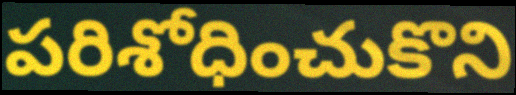
పరిశోధించుకొని